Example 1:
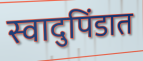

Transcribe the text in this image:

स्वादुपिंडात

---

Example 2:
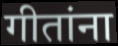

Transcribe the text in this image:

गीतांना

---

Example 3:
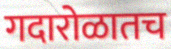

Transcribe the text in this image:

गदारोळातच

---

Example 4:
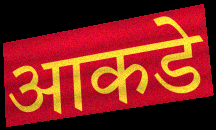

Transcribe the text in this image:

आकडे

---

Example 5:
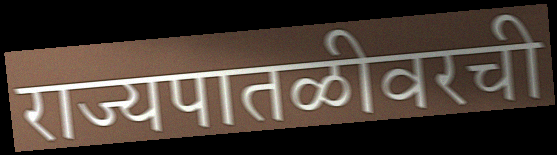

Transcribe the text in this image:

राज्यपातळीवरची